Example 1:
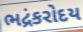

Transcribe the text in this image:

ભદ્રંકરોદય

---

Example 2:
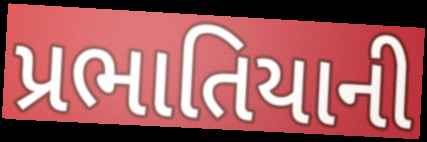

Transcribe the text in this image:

પ્રભાતિયાની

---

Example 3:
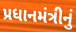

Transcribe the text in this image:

પ્રધાનમંત્રીનું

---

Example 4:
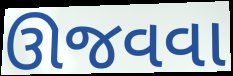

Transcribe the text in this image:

ઊજવવા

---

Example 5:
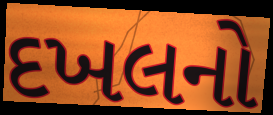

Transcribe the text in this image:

દખલનો